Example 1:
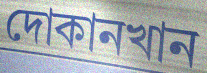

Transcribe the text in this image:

দোকানখান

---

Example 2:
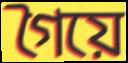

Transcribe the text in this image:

গৈয়ে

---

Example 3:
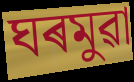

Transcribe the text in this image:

ঘৰমুৱা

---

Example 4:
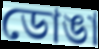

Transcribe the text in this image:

ডোঙা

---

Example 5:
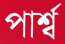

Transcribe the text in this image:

পাৰ্শ্ব